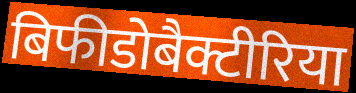
बिफीडोबैक्टीरिया